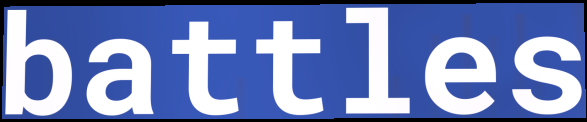
battles